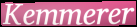
Kemmerer